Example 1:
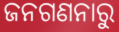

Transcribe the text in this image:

ଜନଗଣନାରୁ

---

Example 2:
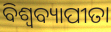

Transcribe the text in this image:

ବିଶ୍ୱବ୍ୟାପୀତା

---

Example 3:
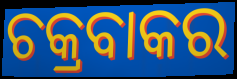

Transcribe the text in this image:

ଚକ୍ରବାକର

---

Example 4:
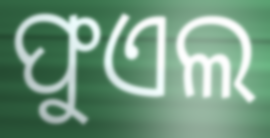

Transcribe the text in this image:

ଫୁଏଲ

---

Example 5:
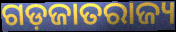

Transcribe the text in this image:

ଗଡ଼ଜାତରାଜ୍ୟ